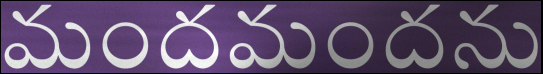
మందమందను